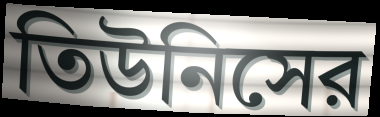
তিউনিসের